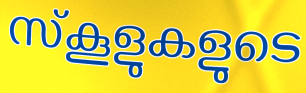
സ്‌കൂളുകളുടെ